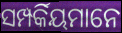
ସମ୍ପର୍କିୟମାନେ